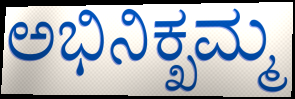
ಅಭಿನಿಕ್ಖಮ್ಮ